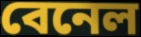
বেনেল